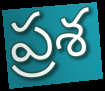
ప్రశ